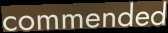
commended